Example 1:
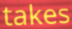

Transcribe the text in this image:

takes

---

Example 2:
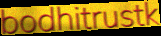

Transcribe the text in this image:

bodhitrustk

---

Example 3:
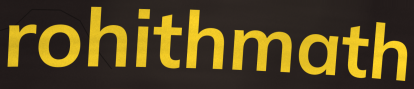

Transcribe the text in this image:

rohithmath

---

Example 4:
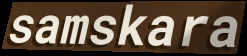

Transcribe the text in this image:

samskara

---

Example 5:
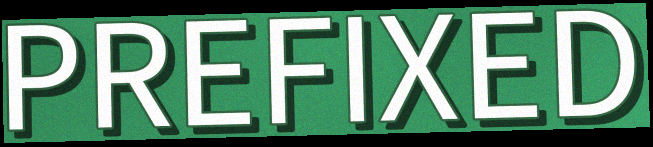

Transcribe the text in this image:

PREFIXED